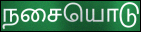
நசையொடு